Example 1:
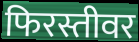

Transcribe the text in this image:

फिरस्तीवर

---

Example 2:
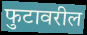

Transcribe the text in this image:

फुटावरील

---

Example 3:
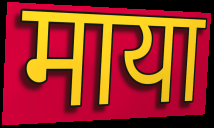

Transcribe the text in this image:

माया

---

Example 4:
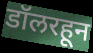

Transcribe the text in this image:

डॉलरहून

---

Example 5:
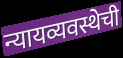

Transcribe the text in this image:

न्यायव्यवस्थेची